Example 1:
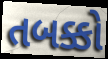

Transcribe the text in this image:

તબક્કો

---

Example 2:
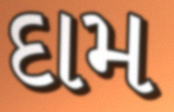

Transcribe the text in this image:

દામ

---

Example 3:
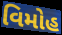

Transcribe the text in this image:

વિમોહ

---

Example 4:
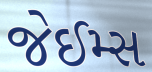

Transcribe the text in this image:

જેઈમ્સ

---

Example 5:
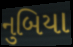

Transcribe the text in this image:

નુબિયા